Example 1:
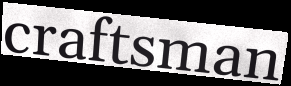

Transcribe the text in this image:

craftsman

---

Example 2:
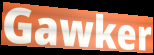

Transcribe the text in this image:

Gawker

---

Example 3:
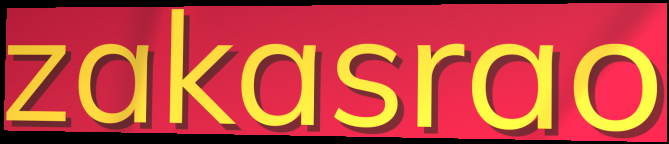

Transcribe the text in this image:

zakasrao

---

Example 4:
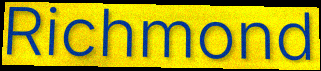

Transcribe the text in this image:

Richmond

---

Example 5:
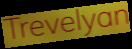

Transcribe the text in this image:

Trevelyan